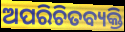
ଅପରିଚିତବ୍ୟକ୍ତି